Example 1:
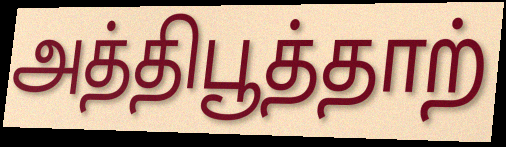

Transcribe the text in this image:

அத்திபூத்தாற்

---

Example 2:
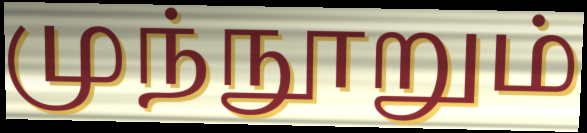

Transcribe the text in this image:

முந்நூறும்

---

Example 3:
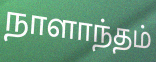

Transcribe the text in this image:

நாளாந்தம்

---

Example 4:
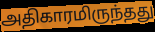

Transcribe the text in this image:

அதிகாரமிருந்தது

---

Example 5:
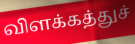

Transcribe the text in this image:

விளக்கத்துச்